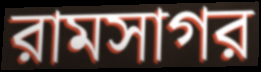
রামসাগর